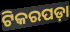
ଟିକରପଡ଼ା